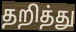
தறித்து